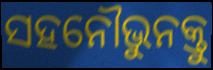
ସହନୌଭୁନକ୍ତୁ